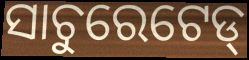
ସାଚୁରେଟେଡ୍